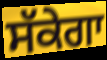
ਸੱਕੇਗਾ